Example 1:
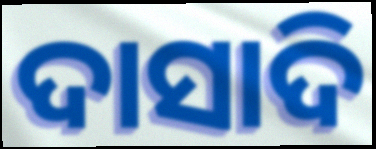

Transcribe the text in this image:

ଦାସାଦି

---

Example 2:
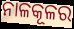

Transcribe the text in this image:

ନାଳକୂଳର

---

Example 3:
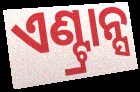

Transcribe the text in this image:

ଏଣ୍ଟ୍ରାନ୍ସ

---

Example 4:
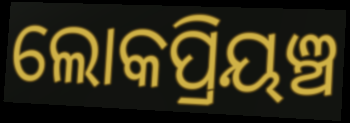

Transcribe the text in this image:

ଲୋକପ୍ରିୟଞ୍ଚ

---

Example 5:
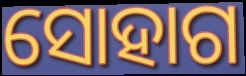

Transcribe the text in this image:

ସୋହାଗ